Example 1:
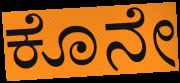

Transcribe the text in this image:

ಕೊನೇ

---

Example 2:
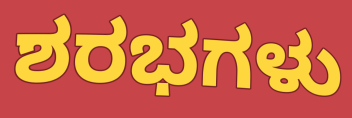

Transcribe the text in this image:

ಶರಭಗಳು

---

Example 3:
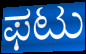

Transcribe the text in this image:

ಫಟು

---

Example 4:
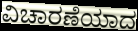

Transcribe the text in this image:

ವಿಚಾರಣೆಯಾದ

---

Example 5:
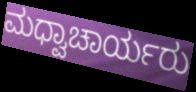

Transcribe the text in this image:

ಮಧ್ವಾಚಾರ್ಯರು